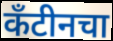
कँटीनचा